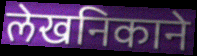
लेखनिकाने